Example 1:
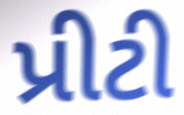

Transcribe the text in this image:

પ્રીટી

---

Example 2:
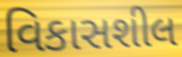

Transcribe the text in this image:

વિકાસશીલ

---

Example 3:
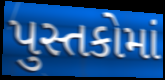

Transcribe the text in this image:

પુસ્તકોમાં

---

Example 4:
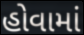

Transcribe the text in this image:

હોવામાં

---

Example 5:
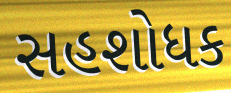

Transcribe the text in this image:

સહશોધક